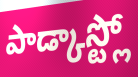
పాడ్కాస్ట్లో